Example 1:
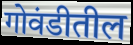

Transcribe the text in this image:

गोवंडीतील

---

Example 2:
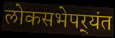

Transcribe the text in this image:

लोकसभेपर्यंत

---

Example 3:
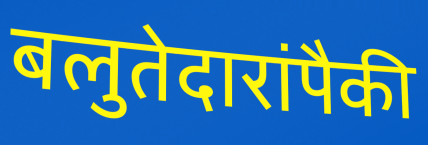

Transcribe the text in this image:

बलुतेदारांपैकी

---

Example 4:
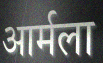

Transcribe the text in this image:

आर्मला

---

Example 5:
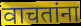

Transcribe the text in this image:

वाचतांना